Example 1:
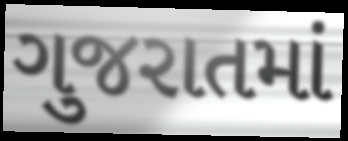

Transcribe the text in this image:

ગુજરાતમાં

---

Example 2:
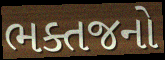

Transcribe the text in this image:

ભક્તજનો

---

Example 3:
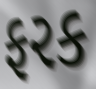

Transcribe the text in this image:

ફરક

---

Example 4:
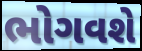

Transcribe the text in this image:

ભોગવશે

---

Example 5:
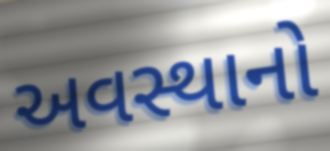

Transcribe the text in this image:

અવસ્થાનો